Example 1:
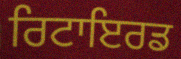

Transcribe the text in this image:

ਰਿਟਾਇਰਡ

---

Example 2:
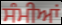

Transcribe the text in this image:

ਸੰਮੀਆਂ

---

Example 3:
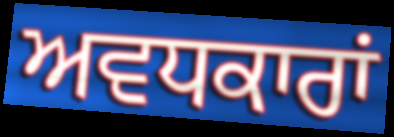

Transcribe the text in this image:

ਅਵਧਕਾਰਾਂ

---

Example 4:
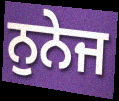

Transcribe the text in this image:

ਨੁਨੇਜ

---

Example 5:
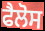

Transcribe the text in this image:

ਫੈਲੋਸ